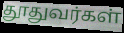
தூதுவர்கள்